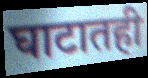
घाटातही